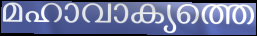
മഹാവാക്യത്തെ